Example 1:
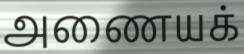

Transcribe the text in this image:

அணையக்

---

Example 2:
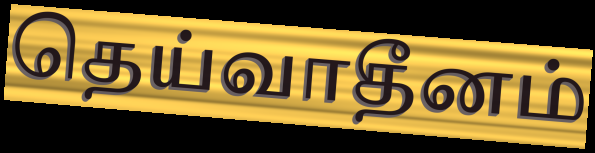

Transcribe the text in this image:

தெய்வாதீனம்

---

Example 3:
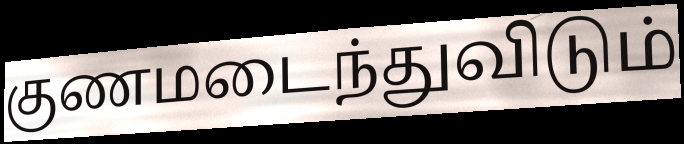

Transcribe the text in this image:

குணமடைந்துவிடும்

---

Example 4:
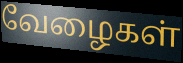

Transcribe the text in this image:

வேழைகள்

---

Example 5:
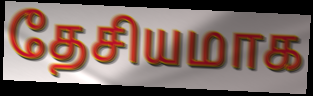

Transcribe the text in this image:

தேசியமாக